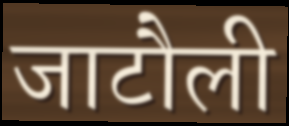
जाटौली